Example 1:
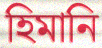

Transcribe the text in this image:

হিমানি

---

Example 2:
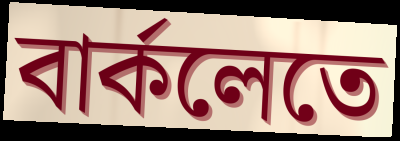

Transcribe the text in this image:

বার্কলেতে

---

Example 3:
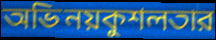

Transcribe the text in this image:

অভিনয়কুশলতার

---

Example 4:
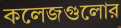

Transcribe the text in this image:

কলেজগুলোর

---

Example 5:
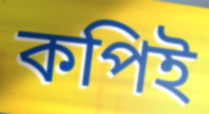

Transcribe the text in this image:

কপিই